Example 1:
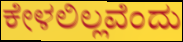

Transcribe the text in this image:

ಕೇಳಲಿಲ್ಲವೆಂದು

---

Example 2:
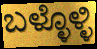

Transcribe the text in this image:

ಬಳ್ಳೊಳ್ಳಿ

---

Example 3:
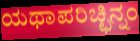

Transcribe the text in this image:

ಯಥಾಪರಿಚ್ಛಿನ್ನಂ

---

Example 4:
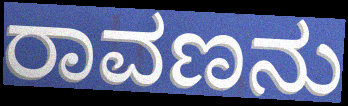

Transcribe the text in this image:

ರಾವಣನು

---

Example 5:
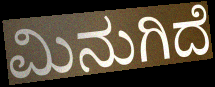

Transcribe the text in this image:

ಮಿನುಗಿದೆ